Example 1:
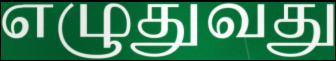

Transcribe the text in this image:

எழுதுவது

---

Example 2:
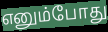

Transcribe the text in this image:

எனும்போது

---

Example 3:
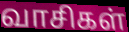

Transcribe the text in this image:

வாசிகள்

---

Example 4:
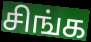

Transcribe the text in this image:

சிங்க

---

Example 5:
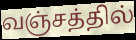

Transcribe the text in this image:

வஞ்சத்தில்